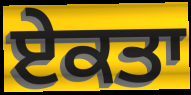
ਏਕਤਾ